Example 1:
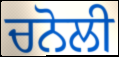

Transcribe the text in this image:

ਚਨੋਲੀ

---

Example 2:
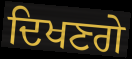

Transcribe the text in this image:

ਦਿਖਣਗੇ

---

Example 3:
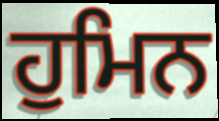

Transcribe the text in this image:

ਹੁਮਿਨ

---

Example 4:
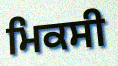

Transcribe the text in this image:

ਮਿਕਸੀ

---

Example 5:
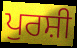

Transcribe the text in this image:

ਪੁਰਸ਼ੀ